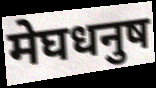
मेघधनुष